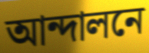
আন্দালনে